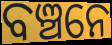
ବଞ୍ଚନେ